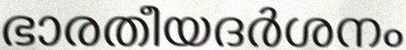
ഭാരതീയദർശനം